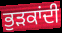
ਭੁੜਕਾਂਦੀ